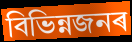
বিভিন্নজনৰ